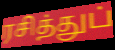
ரசித்துப்